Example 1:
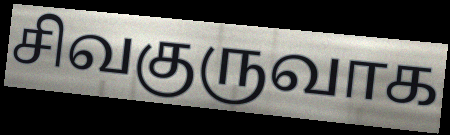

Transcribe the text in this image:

சிவகுருவாக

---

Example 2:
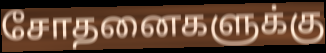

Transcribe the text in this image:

சோதனைகளுக்கு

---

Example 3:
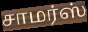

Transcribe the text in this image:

சாமர்ஸ்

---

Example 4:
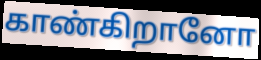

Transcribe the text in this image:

காண்கிறானோ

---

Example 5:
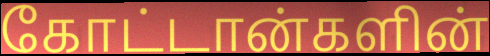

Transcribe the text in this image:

கோட்டான்களின்